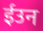
ईउन